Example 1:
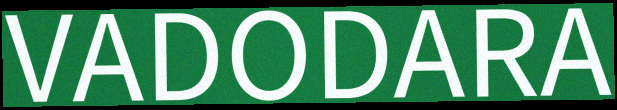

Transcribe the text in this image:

VADODARA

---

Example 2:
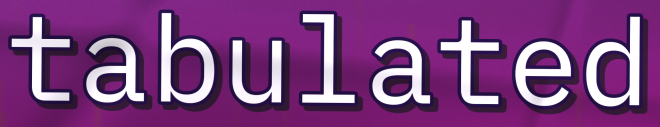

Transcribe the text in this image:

tabulated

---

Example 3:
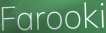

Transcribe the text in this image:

Farooki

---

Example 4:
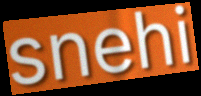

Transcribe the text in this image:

snehi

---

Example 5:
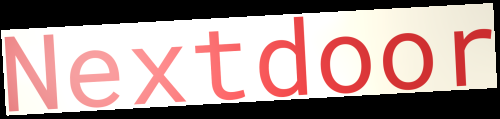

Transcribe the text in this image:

Nextdoor